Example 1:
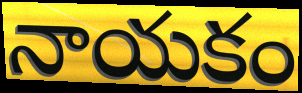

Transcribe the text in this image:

నాయకం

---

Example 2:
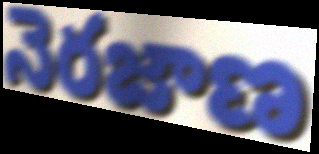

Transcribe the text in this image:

నెరజాణ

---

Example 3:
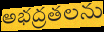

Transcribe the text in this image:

అభద్రతలను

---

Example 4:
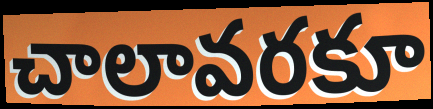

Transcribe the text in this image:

చాలావరకూ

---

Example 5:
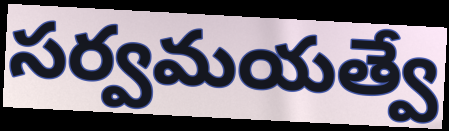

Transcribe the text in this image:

సర్వమయత్వే